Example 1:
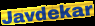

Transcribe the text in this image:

Javdekar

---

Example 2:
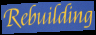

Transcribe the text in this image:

Rebuilding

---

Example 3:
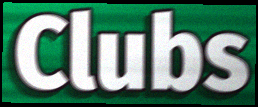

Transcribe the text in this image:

Clubs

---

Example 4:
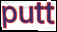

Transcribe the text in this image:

putt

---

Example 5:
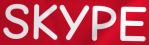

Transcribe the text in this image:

SKYPE